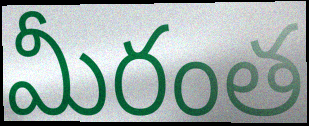
మీరంత